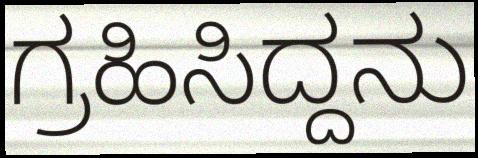
ಗ್ರಹಿಸಿದ್ದನು